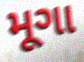
મૂગા